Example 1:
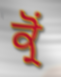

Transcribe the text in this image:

ਕ੍ਰੋਂ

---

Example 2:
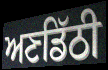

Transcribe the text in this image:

ਅਣਡਿੱਠੀ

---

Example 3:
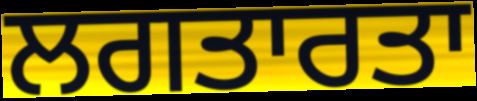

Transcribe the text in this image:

ਲਗਤਾਰਤਾ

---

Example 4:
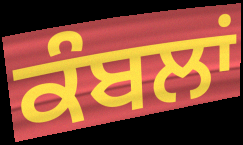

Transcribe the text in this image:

ਕੰਬਲਾਂ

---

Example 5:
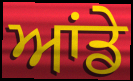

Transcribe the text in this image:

ਆਂਡੇ